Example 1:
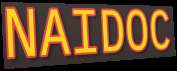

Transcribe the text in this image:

NAIDOC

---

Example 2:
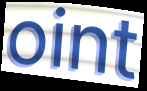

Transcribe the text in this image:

oint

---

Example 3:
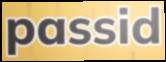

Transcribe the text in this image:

passid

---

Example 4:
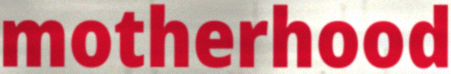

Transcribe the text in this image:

motherhood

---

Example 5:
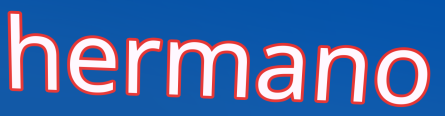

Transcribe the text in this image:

hermano